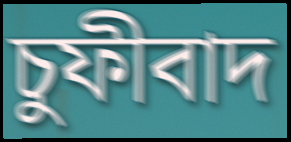
চুফীবাদ